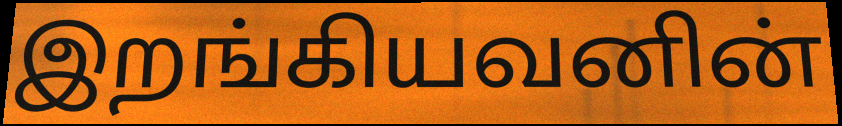
இறங்கியவனின்